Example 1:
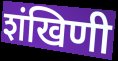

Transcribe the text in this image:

शंखिणी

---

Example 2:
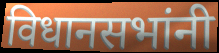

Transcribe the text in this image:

विधानसभांनी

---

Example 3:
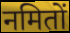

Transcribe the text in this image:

नमितों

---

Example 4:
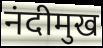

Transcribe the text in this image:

नंदीमुख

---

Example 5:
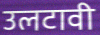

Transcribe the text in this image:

उलटावी